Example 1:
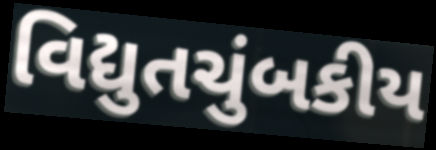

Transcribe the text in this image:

વિદ્યુતચુંબકીય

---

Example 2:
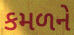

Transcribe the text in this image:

કમળને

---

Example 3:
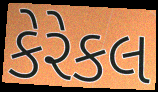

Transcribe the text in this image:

કેરેકલ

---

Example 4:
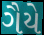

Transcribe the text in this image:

ગૈયે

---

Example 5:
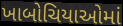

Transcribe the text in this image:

ખાબોચિયાઓમાં